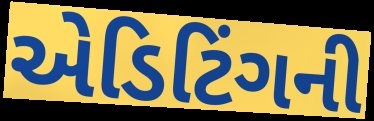
એડિટિંગની